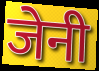
जेनी